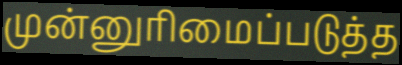
முன்னுரிமைப்படுத்த